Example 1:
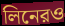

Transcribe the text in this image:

লিনেরও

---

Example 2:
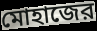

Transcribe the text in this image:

মোহাজের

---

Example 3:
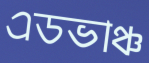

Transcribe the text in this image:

এডভাঞ্চ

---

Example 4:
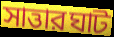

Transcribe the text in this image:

সাত্তারঘাট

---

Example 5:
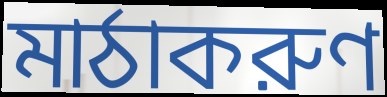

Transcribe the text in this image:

মাঠাকরুণ